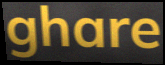
ghare